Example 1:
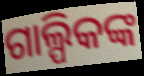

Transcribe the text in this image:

ଗାଲ୍ପିକଙ୍କ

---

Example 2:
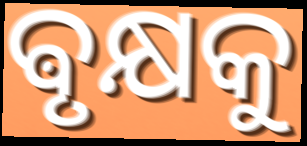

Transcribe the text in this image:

ଵୃକ୍ଷକୁ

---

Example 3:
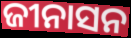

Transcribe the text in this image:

ଜୀନାସନ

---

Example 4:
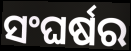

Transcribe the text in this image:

ସଂଘର୍ଷର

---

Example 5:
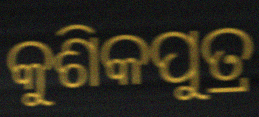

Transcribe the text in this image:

କୁଶିକପୁତ୍ର